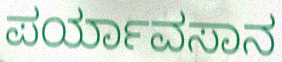
ಪರ್ಯಾವಸಾನ